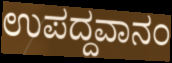
ಉಪದ್ದವಾನಂ